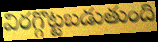
విరగ్గొట్టబడుతుంది